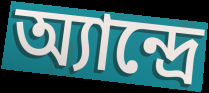
অ্যান্দ্রে